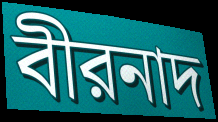
বীরনাদ